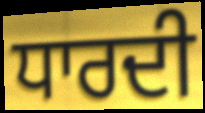
ਧਾਰਦੀ